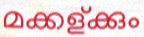
മക്കള്ക്കും